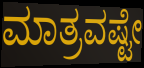
ಮಾತ್ರವಷ್ಟೇ